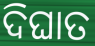
ଦିଘାତ